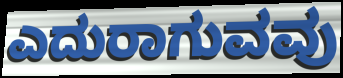
ಎದುರಾಗುವವು